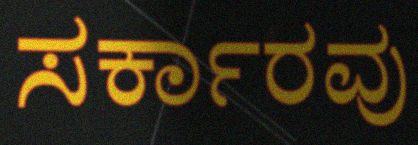
ಸರ್ಕಾರವು